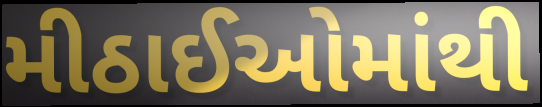
મીઠાઈઓમાંથી